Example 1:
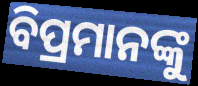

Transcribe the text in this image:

ବିପ୍ରମାନଙ୍କୁ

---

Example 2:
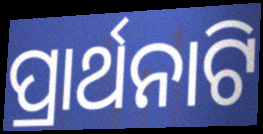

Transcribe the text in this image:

ପ୍ରାର୍ଥନାଟି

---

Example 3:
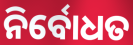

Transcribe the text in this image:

ନିର୍ବୋଧତ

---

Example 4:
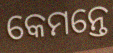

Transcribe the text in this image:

କେମନ୍ତେ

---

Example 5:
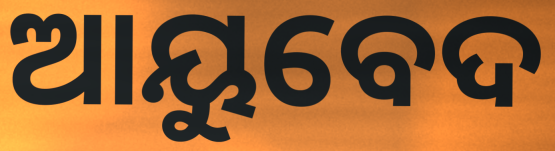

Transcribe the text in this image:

ଆୟୁବେଦ